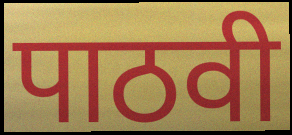
पाठवी